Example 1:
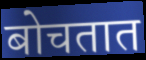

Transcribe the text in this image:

बोचतात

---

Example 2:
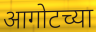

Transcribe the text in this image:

आगोटच्या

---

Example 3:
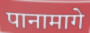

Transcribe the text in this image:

पानामागे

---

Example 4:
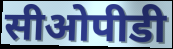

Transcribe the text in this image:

सीओपीडी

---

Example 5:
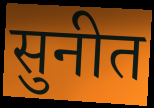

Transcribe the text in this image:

सुनीत